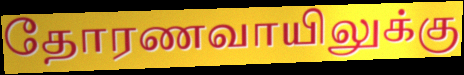
தோரணவாயிலுக்கு